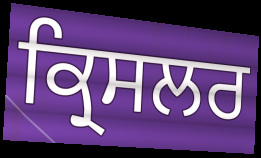
ਕ੍ਰਿਸਲਰ